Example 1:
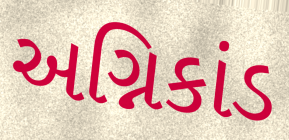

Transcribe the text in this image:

અગ્નિકાંડ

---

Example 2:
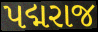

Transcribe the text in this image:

પદ્મરાજ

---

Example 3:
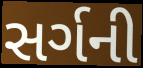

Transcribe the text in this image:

સર્ગની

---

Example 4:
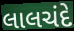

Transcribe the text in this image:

લાલચંદે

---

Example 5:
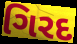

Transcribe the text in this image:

ગિરદ